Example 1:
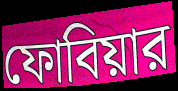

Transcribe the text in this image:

ফোবিয়ার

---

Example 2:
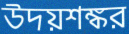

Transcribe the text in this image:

উদয়শঙ্কর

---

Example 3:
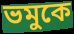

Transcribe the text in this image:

ভমুকে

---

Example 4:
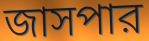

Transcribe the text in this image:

জাসপার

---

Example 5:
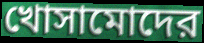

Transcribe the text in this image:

খোসামোদের